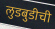
लुडबुडीची